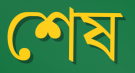
শেষ